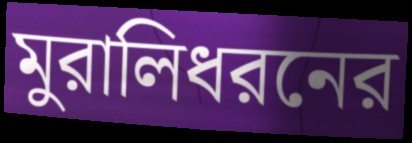
মুরালিধরনের